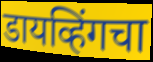
डायव्हिंगचा